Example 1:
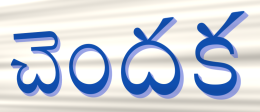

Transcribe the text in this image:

చెందక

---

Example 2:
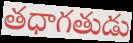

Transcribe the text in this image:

తధాగతుడు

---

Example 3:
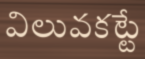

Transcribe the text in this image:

విలువకట్టే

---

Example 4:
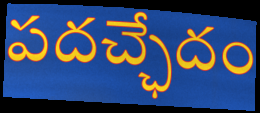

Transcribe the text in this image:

పదచ్ఛేదం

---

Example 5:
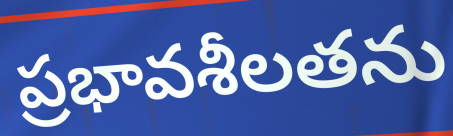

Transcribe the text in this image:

ప్రభావశీలతను